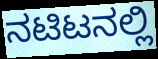
ನಟಿಟನಲ್ಲಿ